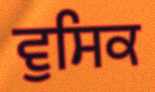
ਵੁਸਿਕ